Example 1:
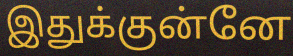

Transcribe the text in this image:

இதுக்குன்னே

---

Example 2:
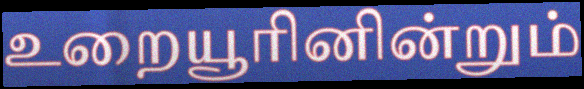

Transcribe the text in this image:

உறையூரினின்றும்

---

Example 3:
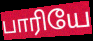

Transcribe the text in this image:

பாரியே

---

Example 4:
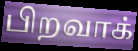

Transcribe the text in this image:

பிறவாக்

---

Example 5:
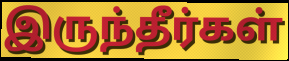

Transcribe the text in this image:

இருந்தீர்கள்